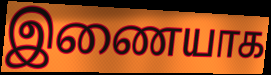
இணையாக